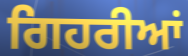
ਗਿਹਰੀਆਂ